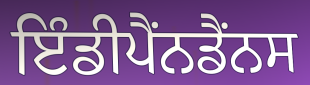
ਇੰਡੀਪੈਂਨਡੈਂਨਸ